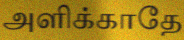
அளிக்காதே